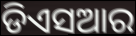
ଡିଏସଆର